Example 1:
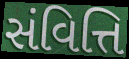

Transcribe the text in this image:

સંવિત્તિ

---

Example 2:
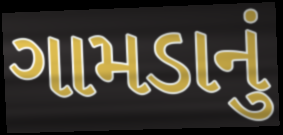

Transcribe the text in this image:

ગામડાનું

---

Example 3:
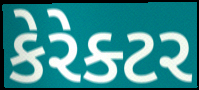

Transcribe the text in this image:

કેરેક્ટર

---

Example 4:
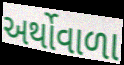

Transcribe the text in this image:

અર્થોવાળા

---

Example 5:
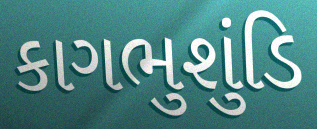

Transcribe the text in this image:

કાગભુશુંડિ